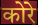
कोरे